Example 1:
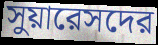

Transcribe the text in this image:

সুয়ারেসদের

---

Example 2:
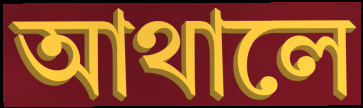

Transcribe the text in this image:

আথালে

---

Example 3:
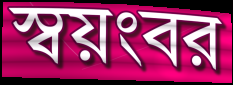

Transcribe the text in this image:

স্বয়ংবর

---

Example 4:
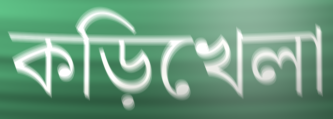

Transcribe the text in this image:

কড়িখেলা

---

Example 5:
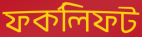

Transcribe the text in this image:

ফর্কলিফট